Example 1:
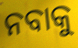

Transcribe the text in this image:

ନବାକୁ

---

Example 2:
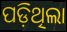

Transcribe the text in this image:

ପଡ଼ିଥିଲା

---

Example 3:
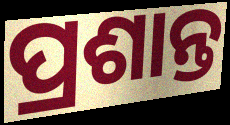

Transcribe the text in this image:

ପ୍ରଶାନ୍ତ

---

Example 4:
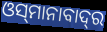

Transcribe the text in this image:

ଓସ୍‌ମାନାବାଦ୍‌ର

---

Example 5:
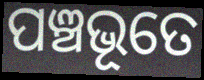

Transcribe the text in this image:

ପଞ୍ଚଭୂତେ